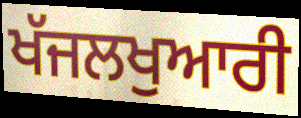
ਖੱਜਲਖੁਆਰੀ